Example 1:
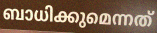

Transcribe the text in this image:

ബാധിക്കുമെന്നത്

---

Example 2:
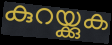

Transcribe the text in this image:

കുറയ്ക്കുക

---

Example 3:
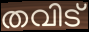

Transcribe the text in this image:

തവിട്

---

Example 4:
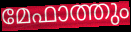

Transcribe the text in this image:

മേഫാത്തും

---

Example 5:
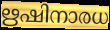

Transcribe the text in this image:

ഋഷിനാരധ